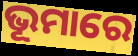
ଭୂମାରେ